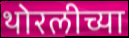
थोरलीच्या